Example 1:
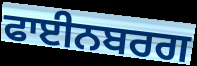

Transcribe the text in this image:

ਫਾਈਨਬਰਗ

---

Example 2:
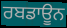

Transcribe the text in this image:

ਰਬਡਾਊਨ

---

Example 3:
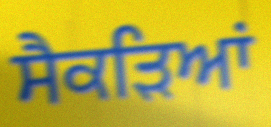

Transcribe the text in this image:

ਸੈਕੜਿਆਂ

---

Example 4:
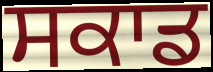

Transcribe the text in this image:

ਸਕਾਡ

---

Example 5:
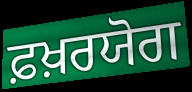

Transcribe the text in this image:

ਫ਼ਖ਼ਰਯੋਗ